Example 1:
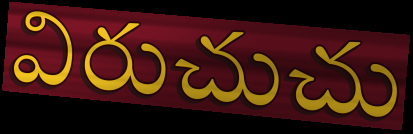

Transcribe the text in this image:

విరుచుచు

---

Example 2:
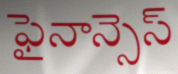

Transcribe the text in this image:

ఫైనాన్సెస్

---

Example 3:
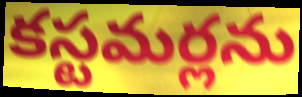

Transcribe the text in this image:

కస్టమర్లను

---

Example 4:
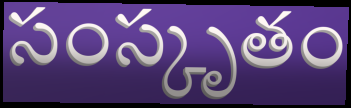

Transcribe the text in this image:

సంస్కృతం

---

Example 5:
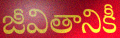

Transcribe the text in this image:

జీవితానికీ